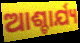
ଆଶ୍ଚାର୍ଯ୍ୟ